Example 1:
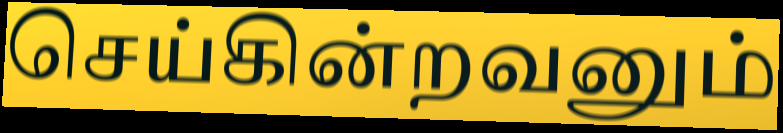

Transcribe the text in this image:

செய்கின்றவனும்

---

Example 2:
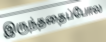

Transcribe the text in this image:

இருந்ததைப்போல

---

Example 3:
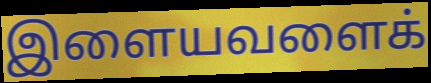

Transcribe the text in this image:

இளையவளைக்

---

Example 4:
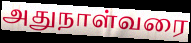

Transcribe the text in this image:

அதுநாள்வரை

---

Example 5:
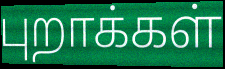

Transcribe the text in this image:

புறாக்கள்